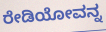
ರೇಡಿಯೋವನ್ನ